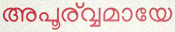
അപൂര്വ്വമായേ